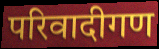
परिवादीगण